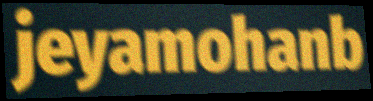
jeyamohanb